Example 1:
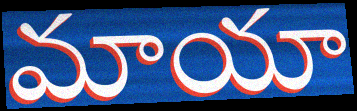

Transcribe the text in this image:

మాయా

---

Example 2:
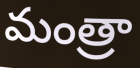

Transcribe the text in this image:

మంత్రా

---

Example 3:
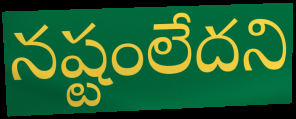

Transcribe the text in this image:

నష్టంలేదని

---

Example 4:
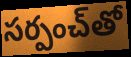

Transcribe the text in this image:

సర్పంచ్‌తో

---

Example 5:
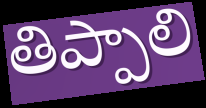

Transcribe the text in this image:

తిప్పాలి